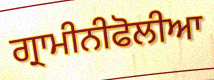
ਗ੍ਰਾਮੀਨੀਫੋਲੀਆ